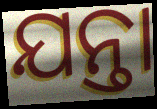
ଯନ୍ତା